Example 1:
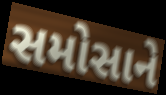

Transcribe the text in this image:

સમોસાને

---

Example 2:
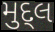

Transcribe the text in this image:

મુદ્લ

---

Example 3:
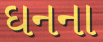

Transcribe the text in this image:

ઘનના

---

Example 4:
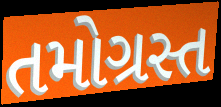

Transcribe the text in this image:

તમોગ્રસ્ત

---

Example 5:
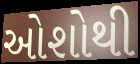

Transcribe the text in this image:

ઓશોથી